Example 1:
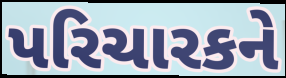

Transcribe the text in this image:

પરિચારકને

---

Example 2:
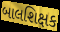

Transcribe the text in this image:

બાલશિક્ષક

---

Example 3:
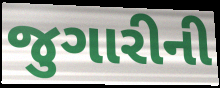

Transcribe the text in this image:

જુગારીની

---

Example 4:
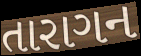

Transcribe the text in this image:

તારાગન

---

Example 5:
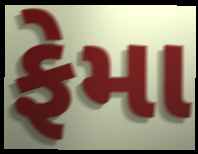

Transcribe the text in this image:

ફેમા